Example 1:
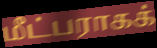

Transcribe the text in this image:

மீட்பராகக்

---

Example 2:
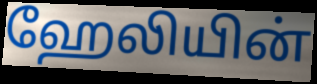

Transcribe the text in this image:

ஹேலியின்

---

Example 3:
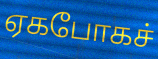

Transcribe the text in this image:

ஏகபோகச்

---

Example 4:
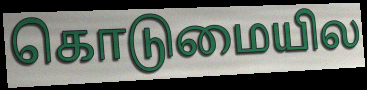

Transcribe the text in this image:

கொடுமையில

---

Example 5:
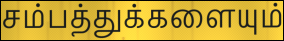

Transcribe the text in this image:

சம்பத்துக்களையும்